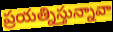
ప్రయత్నిస్తున్నావా